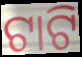
ଟାଟି